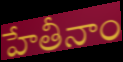
హేతీనాం